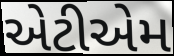
એટીએમ